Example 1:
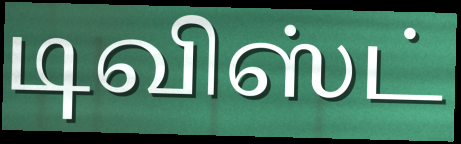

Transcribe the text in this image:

டிவிஸ்ட்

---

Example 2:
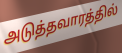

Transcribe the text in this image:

அடுத்தவாரத்தில்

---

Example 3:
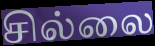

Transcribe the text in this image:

சில்லை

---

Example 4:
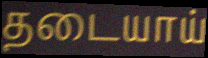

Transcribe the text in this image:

தடையாய்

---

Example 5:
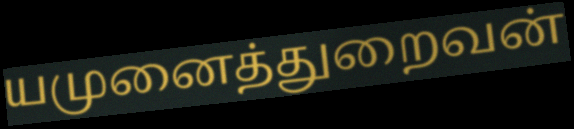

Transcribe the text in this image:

யமுனைத்துறைவன்